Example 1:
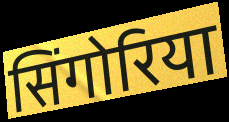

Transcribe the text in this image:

सिंगोरिया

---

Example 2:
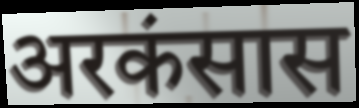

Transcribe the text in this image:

अरकंसास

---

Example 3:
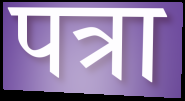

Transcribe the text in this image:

पत्रा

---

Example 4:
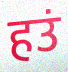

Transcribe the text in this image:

हउं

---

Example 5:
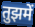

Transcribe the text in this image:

तुझमें